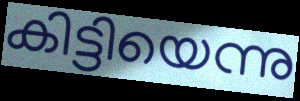
കിട്ടിയെന്നു